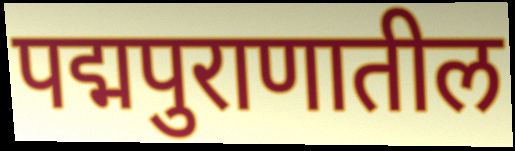
पद्मपुराणातील